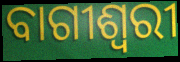
ବାଗୀଶ୍ୱରୀ